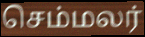
செம்மலர்